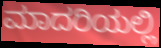
ಮಾದರಿಯಲ್ಲಿ